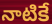
నాటికే